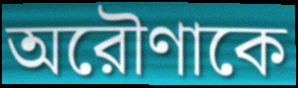
অরৌণাকে